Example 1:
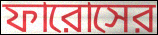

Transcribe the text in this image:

ফারোসের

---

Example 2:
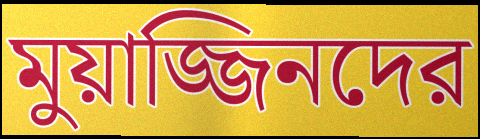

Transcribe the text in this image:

মুয়াজ্জিনদের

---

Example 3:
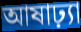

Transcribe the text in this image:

আষাঢ়্যা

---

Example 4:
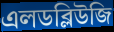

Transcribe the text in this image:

এলডব্লিউজি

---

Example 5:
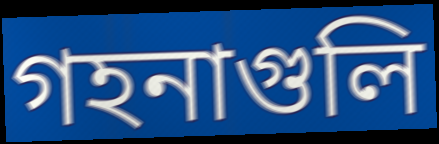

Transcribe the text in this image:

গহনাগুলি